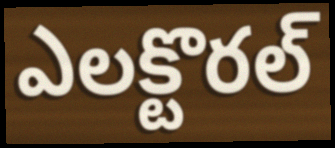
ఎలక్టొరల్